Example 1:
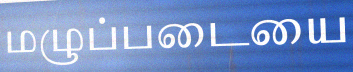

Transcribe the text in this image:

மழுப்படையை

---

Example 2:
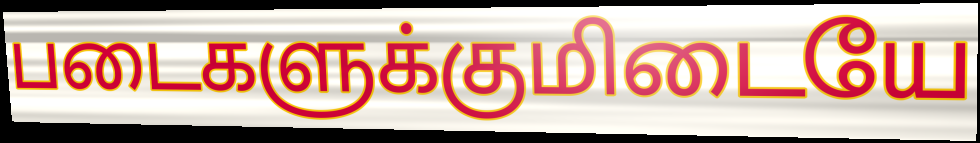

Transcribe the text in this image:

படைகளுக்குமிடையே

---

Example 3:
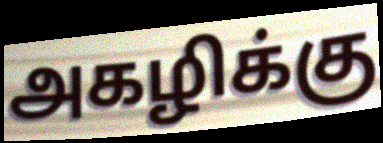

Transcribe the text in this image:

அகழிக்கு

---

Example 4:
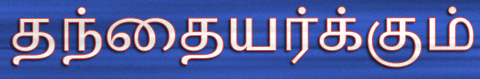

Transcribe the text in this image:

தந்தையர்க்கும்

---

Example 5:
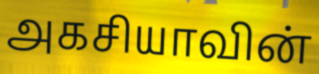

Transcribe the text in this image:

அகசியாவின்